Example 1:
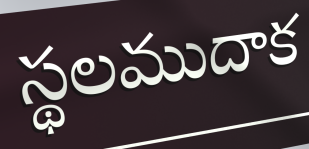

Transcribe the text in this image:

స్థలముదాక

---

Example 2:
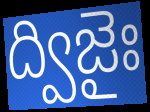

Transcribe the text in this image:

ద్విజైః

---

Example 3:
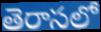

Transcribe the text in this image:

తెరాసలో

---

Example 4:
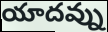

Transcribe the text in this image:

యాదవ్ను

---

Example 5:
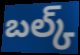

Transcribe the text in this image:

బల్క్